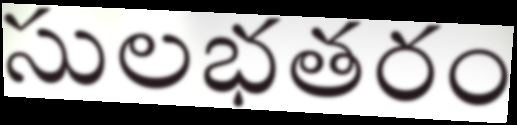
సులభతరం